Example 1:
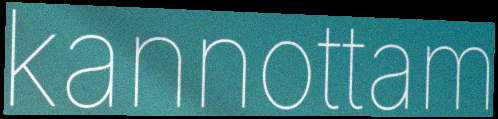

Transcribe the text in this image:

kannottam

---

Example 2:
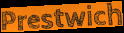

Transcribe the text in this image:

Prestwich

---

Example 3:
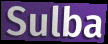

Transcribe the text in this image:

Sulba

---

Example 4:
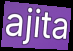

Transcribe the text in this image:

ajita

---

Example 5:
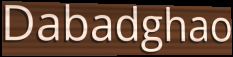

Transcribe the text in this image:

Dabadghao